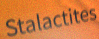
Stalactites